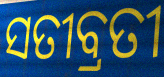
ସତୀବ୍ରତୀ